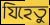
যিহেতু